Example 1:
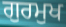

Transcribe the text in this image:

ਗੁਰਮੁਖ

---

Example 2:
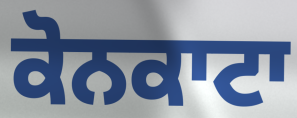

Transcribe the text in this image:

ਕੋਨਕਾਟਾ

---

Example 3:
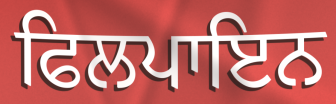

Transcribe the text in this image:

ਫਿਲਪਾਇਨ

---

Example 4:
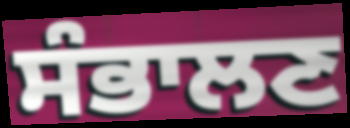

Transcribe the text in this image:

ਸੰਭਾਲਣ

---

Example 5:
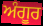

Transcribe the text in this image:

ਅੰਗੂਰ